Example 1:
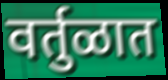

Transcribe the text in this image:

वर्तुळात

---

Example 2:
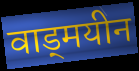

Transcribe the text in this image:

वाड्‌मयीन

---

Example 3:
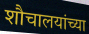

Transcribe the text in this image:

शौचालयांच्या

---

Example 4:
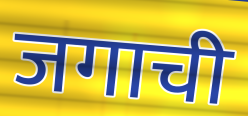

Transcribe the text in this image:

जगाची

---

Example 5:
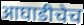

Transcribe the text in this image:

आघाडीचेच